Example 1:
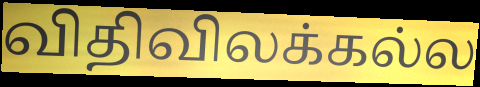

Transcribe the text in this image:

விதிவிலக்கல்ல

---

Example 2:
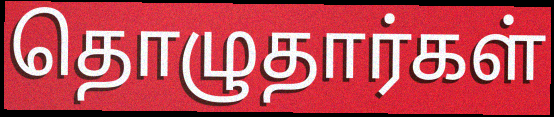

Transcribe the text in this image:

தொழுதார்கள்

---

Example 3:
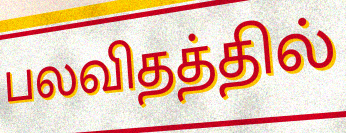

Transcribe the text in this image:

பலவிதத்தில்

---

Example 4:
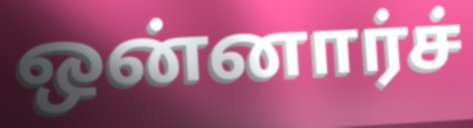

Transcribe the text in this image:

ஒன்னார்ச்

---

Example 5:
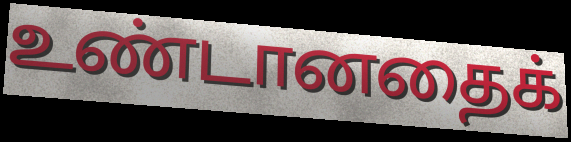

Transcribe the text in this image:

உண்டானதைக்